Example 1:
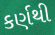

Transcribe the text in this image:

કર્ણથી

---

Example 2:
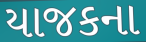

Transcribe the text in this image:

યાજકના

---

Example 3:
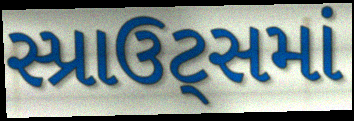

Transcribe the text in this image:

સ્પ્રાઉટ્સમાં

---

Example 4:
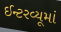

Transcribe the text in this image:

ઈન્ટરવ્યૂમાં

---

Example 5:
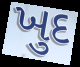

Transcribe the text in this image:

ખુદ